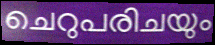
ചെറുപരിചയും